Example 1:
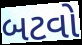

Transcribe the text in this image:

બટવો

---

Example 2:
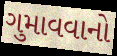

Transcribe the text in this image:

ગુમાવવાનો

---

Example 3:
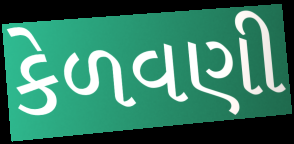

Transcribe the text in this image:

કેળવણી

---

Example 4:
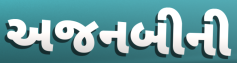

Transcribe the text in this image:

અજનબીની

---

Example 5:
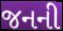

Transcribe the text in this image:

જનની